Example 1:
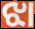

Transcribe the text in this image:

ଝା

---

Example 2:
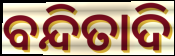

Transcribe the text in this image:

ବନ୍ଦିତାଦି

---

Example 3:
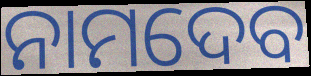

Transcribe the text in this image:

ନାମଦେବ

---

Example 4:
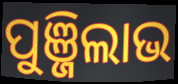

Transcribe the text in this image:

ପୁଞ୍ଜିଲାଭ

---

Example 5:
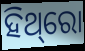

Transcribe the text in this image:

ହିଥ୍‌ରୋ